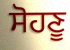
ਸੋਹਣੂ